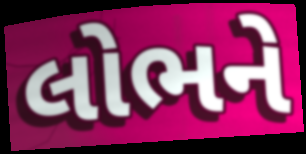
લોભને